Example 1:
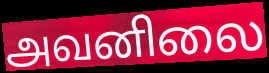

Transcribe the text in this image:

அவனிலை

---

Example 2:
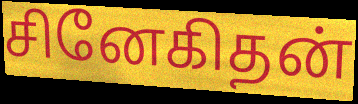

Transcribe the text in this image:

சினேகிதன்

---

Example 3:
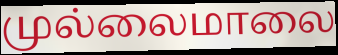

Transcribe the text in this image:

முல்லைமாலை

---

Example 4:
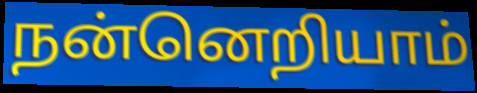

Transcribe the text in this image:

நன்னெறியாம்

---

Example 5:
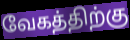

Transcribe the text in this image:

வேகத்திற்கு